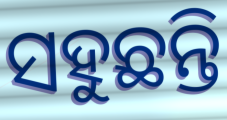
ସହୁଛନ୍ତି